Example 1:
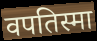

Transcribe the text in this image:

वपतिस्मा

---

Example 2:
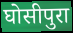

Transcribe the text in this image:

घोसीपुरा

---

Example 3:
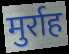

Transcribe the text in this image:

मुर्राह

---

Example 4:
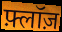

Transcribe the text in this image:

फ़्लॉज़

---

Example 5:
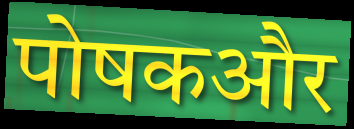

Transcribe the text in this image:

पोषकऔर